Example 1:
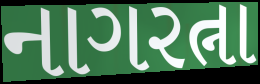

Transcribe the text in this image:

નાગરત્ના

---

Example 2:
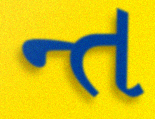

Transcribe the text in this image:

ન્ત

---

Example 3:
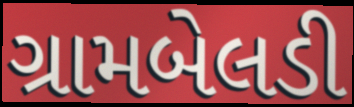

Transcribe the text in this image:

ગ્રામબેલડી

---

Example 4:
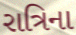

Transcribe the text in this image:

રાત્રિના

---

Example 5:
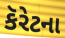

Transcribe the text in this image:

કૅરેટના